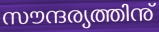
സൗന്ദര്യത്തിനു്